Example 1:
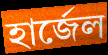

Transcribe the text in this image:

হার্জেল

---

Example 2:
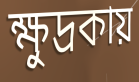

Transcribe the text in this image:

ক্ষুদ্রকায়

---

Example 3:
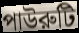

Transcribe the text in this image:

পাউরুটি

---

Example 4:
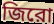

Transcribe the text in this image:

জিরো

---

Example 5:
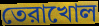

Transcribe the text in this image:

তেরাখোল